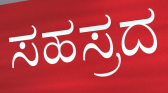
ಸಹಸ್ರದ